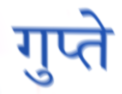
गुप्ते